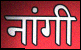
नांगी